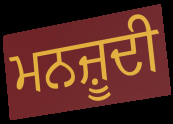
ਮਨਜ਼ੂਦੀ